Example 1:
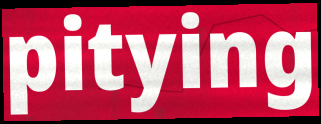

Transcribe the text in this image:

pitying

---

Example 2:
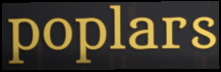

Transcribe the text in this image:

poplars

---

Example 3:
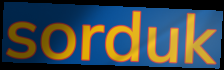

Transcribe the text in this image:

sorduk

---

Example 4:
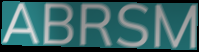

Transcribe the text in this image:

ABRSM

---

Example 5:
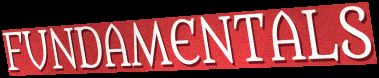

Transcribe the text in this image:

FUNDAMENTALS